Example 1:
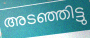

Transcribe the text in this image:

അടഞ്ഞിട്ടു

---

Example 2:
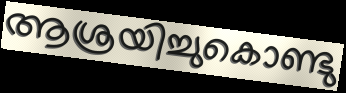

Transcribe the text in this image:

ആശ്രയിച്ചുകൊണ്ടു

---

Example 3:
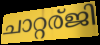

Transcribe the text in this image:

ചാറ്റര്ജി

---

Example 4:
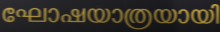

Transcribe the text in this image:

ഘോഷയാത്രയായി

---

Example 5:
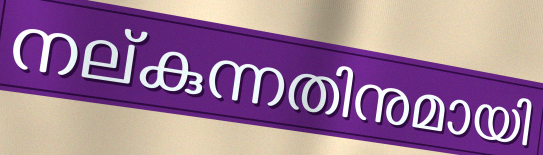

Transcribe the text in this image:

നല്‌കുന്നതിനുമായി